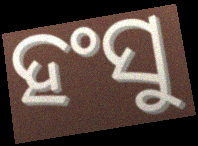
ହଂସୁ